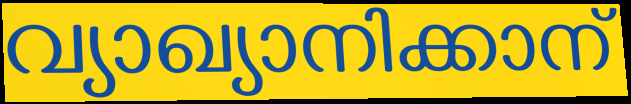
വ്യാഖ്യാനിക്കാന്